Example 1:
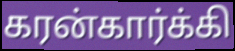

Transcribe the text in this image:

கரன்கார்க்கி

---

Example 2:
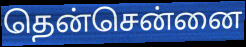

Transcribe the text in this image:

தென்சென்னை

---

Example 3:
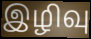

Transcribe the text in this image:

இழிவு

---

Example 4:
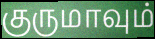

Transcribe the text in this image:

குருமாவும்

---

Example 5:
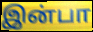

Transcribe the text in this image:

இன்பா